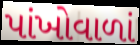
પાંખોવાળાં